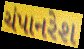
ચંપાનરેશ